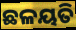
ଛଳୟତି